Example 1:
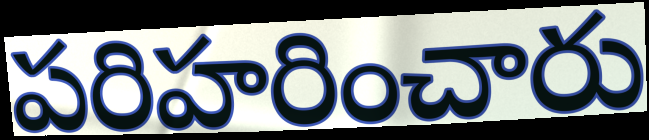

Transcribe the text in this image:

పరిహరించారు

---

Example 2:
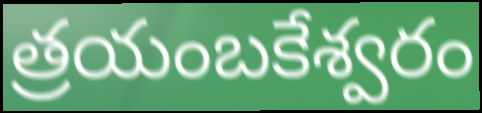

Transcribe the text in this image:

త్రయంబకేశ్వరం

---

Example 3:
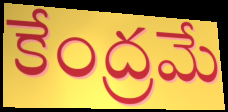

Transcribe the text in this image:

కేంద్రమే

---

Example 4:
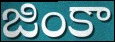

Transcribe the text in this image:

జింకా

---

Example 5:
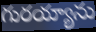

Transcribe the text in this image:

గురయ్యాను